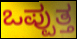
ಒಪ್ಪುತ್ತ